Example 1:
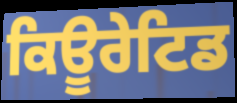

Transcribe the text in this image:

ਕਿਊਰੇਟਿਡ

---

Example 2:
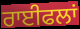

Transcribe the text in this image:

ਰਾਈਫਲਾਂ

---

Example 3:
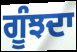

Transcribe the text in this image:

ਗੂੰਝਦਾ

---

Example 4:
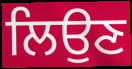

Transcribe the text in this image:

ਲਿਉਣ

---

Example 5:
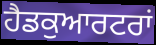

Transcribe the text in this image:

ਹੈਡਕੁਆਰਟਰਾਂ